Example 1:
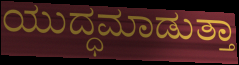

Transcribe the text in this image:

ಯುದ್ಧಮಾಡುತ್ತಾ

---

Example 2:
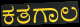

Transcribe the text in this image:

ಕತಗಾಲ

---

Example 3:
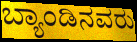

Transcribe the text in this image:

ಬ್ಯಾಂಡಿನವರು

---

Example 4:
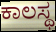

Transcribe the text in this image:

ಕಾಲಸ್ಥ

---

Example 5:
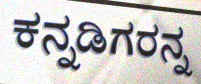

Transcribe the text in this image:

ಕನ್ನಡಿಗರನ್ನ